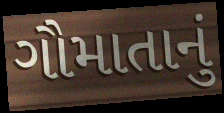
ગૌમાતાનું